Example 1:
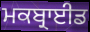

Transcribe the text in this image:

ਮਕਬ੍ਰਾਈਡ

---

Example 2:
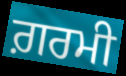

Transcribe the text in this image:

ਗ਼ਰਮੀ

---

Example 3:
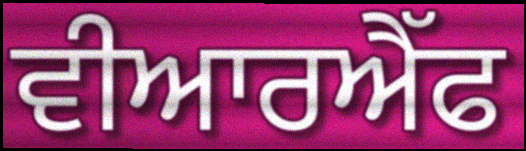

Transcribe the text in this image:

ਵੀਆਰਐੱਫ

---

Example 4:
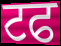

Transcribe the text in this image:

ਟਫ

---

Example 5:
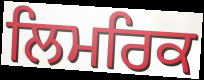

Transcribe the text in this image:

ਲਿਮਰਿਕ